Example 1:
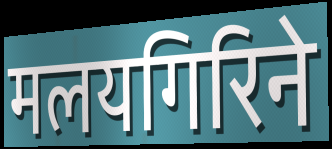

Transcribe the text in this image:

मलयगिरिने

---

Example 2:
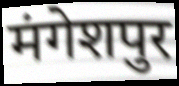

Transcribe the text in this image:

मंगेशपुर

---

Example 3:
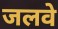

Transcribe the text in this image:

जलवे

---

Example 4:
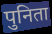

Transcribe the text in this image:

पुनिता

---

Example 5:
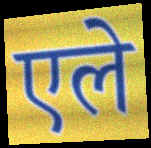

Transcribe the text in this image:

एले